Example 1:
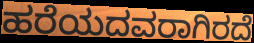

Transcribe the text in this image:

ಹರೆಯದವರಾಗಿರದೆ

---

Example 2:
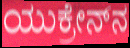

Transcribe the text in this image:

ಯುಕ್ರೇನ್‌ನ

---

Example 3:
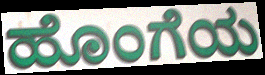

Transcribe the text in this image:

ಹೊಂಗೆಯ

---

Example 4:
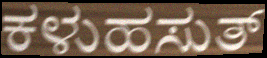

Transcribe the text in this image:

ಕಳುಹಸುತ್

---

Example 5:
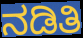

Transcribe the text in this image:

ನಡಿತಿ